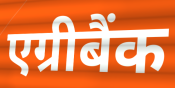
एग्रीबैंक